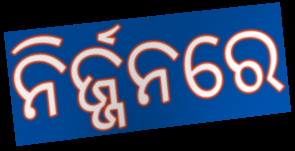
ନିର୍ଜ୍ଜନରେ